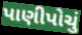
પાણીપોચું